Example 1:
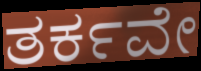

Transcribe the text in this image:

ತರ್ಕವೇ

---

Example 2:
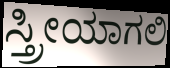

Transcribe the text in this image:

ಸ್ತ್ರೀಯಾಗಲಿ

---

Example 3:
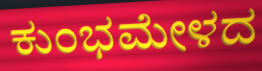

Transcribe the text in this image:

ಕುಂಭಮೇಳದ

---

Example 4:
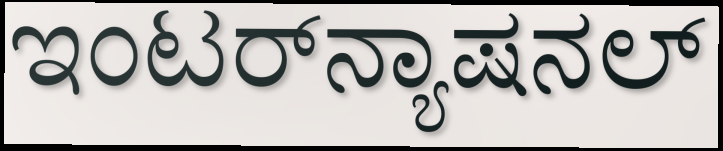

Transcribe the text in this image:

ಇಂಟರ್‌ನ್ಯಾಷನಲ್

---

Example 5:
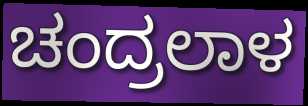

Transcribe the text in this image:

ಚಂದ್ರಲಾಳ